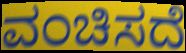
ವಂಚಿಸದೆ